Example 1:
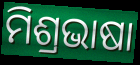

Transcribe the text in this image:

ମିଶ୍ରଭାଷା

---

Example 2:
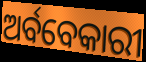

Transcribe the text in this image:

ଅର୍ବବେକାରୀ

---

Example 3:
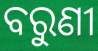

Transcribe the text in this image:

ବରୁଣୀ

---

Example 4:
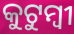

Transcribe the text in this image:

କୁଟୁମ୍ୱୀ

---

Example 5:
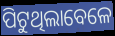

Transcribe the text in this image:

ପିଟୁଥିଲାବେଳେ